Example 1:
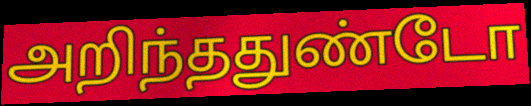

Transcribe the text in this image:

அறிந்ததுண்டோ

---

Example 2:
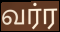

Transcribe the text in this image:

வர்ர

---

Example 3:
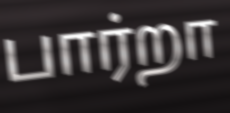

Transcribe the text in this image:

பார்றா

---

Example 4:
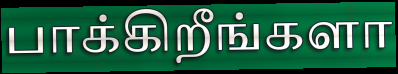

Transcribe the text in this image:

பாக்கிறீங்களா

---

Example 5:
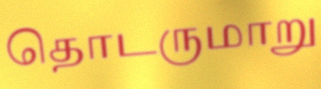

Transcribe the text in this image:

தொடருமாறு